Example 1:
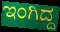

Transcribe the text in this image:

ಇಂಗಿದ್ದ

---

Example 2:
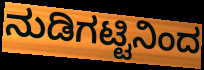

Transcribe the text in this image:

ನುಡಿಗಟ್ಟಿನಿಂದ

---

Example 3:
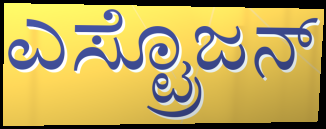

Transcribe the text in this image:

ಎಸ್ಟ್ರೊಜನ್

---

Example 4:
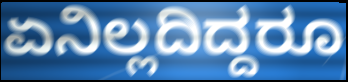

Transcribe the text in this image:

ಏನಿಲ್ಲದಿದ್ದರೂ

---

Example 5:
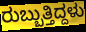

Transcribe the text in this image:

ರುಬ್ಬುತ್ತಿದ್ದಳು